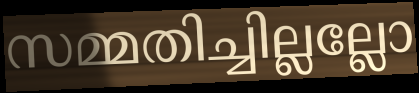
സമ്മതിച്ചില്ലല്ലോ